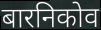
बारनिकोव